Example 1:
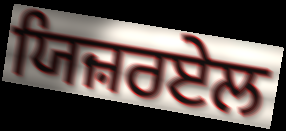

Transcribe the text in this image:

ਯਿਜ਼ਰਏਲ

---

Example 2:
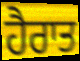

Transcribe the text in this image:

ਹੈਰਾਤ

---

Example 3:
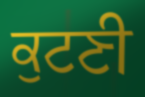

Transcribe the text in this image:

ਕੁਟਣੀ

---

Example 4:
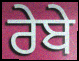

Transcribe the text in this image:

ਰੇਬੇ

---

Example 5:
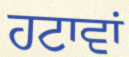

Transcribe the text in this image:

ਹਟਾਵਾਂ